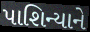
પાશિન્યાને